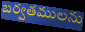
బర్వతములను